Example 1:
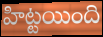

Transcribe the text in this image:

హిట్టయింది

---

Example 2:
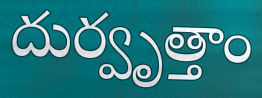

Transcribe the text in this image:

దుర్వృత్తాం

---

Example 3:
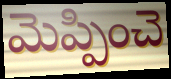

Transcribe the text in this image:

మెప్పించె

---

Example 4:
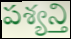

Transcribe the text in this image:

పశ్యన్తి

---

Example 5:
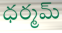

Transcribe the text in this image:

ధర్మమ్